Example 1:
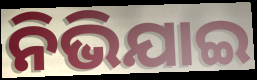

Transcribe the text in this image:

ନିଭିଯାଇ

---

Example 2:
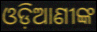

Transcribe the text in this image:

ଓଡ଼ିଆଣୀଙ୍କ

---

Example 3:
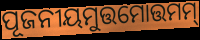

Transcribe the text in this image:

ପୂଜନୀୟମୁତ୍ତମୋତ୍ତମମ୍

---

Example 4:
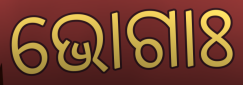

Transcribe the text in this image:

ଭୋଗାଃ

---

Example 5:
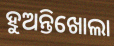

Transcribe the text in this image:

ହୁଅନ୍ତିଖୋଲା